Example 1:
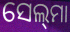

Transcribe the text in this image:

ସେଲ୍‌ମା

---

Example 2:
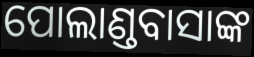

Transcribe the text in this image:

ପୋଲାଣ୍ଡବାସାଙ୍କ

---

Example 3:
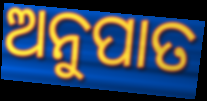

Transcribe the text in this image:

ଅନୁପାତ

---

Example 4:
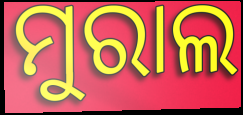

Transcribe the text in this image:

ମୁରାଲ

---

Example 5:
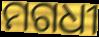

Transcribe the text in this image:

ମଗଧୀ